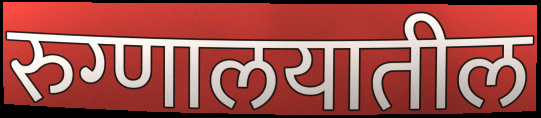
रुग्णालयातील